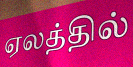
ஏலத்தில்